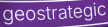
geostrategic